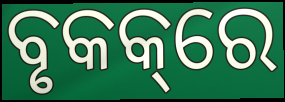
ବୃକକ୍‌ରେ